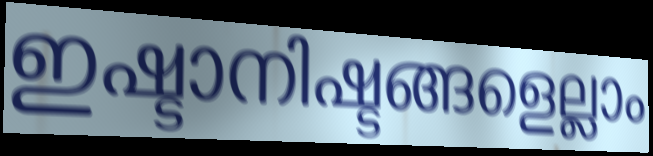
ഇഷ്ടാനിഷ്ടങ്ങളെല്ലാം